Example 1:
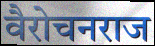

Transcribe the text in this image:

वैरोचनराज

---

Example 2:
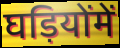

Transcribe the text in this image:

घड़ियोंमें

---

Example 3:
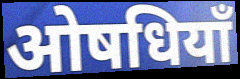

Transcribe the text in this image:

ओषधियाँ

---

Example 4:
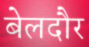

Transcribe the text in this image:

बेलदौर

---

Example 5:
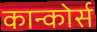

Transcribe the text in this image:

कान्कोर्स